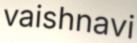
vaishnavi